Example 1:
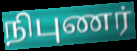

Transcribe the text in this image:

நிபுணர்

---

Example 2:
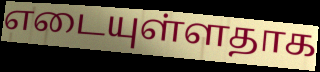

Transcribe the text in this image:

எடையுள்ளதாக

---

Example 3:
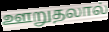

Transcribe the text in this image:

ஊறுதலால்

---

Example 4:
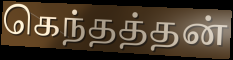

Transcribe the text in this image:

கெந்தத்தன்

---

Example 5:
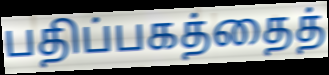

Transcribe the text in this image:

பதிப்பகத்தைத்